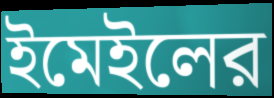
ইমেইলের